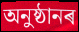
অনুষ্ঠানৰ